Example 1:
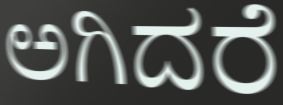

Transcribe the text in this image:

ಅಗಿದರೆ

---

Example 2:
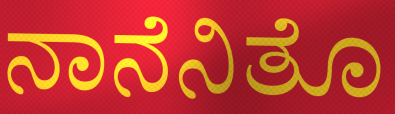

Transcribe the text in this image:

ನಾನೆನಿತೊ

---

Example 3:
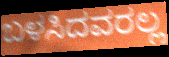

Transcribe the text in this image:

ಬಳಸಿದವರಲ್ಲ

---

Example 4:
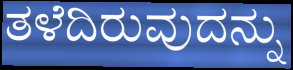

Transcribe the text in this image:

ತಳೆದಿರುವುದನ್ನು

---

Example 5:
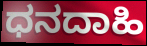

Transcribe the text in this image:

ಧನದಾಹಿ